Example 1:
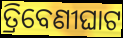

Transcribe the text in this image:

ତ୍ରିବେଣୀଘାଟ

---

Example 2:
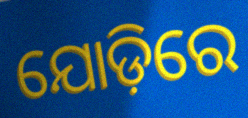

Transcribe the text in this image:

ଯୋଡ଼ିରେ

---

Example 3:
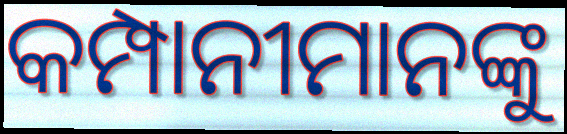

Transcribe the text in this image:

କମ୍ପାନୀମାନଙ୍କୁ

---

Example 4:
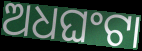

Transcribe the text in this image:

ଅଧଘଂଟା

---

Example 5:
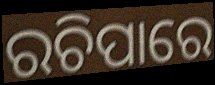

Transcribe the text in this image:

ରଚିପାରେ